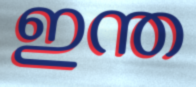
ഇന്ത